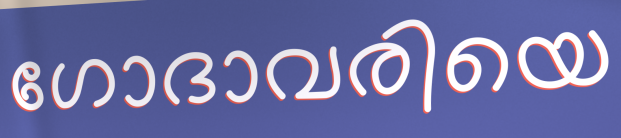
ഗോദാവരിയെ